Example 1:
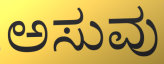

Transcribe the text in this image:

ಅಸುವು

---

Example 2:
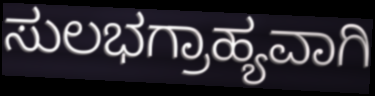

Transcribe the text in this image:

ಸುಲಭಗ್ರಾಹ್ಯವಾಗಿ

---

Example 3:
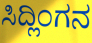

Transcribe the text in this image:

ಸಿದ್ಲಿಂಗನ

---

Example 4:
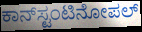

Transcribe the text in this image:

ಕಾನ್‍ಸ್ಟಂಟಿನೋಪಲ್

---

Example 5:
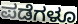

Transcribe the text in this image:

ಪಡೆಗಳೂ